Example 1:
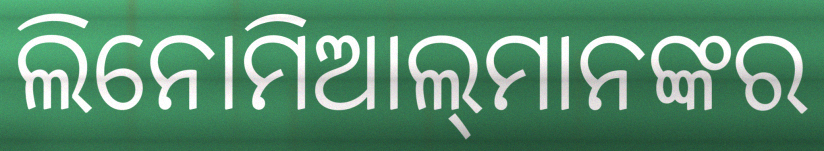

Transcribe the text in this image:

ଲିନୋମିଆଲ୍‌ମାନଙ୍କର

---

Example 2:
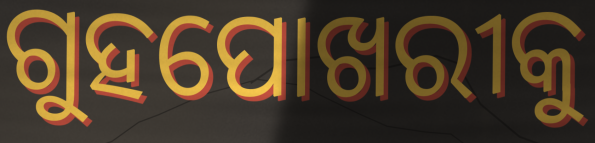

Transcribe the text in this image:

ଗୁହପୋଖରୀକୁ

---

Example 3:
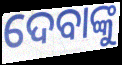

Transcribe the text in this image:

ଦେବାଙ୍କୁ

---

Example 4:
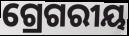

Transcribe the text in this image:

ଗ୍ରେଗରୀୟ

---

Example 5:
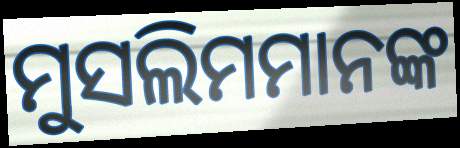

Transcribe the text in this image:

ମୁସଲିମମାନଙ୍କ